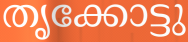
തൃക്കോട്ടു